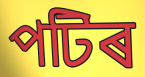
পটিৰ